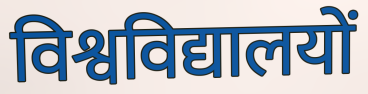
विश्वविद्यालयों